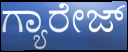
ಗ್ಯಾರೇಜ್